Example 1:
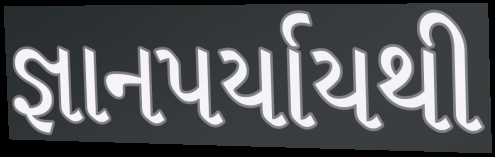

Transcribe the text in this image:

જ્ઞાનપર્યાયથી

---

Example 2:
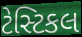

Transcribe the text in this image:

ટેસ્ટિકલ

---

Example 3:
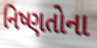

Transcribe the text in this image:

નિષ્ણતોના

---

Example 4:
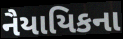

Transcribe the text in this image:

નૈયાયિકના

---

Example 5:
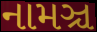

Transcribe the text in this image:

નામઞ્ચ